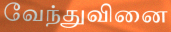
வேந்துவினை